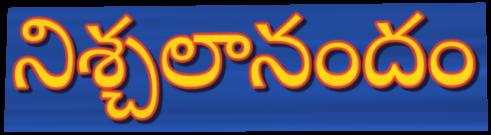
నిశ్చలానందం